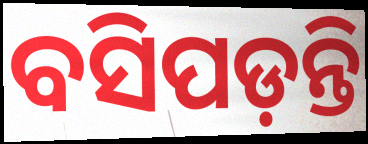
ବସିପଡ଼ନ୍ତି